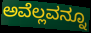
ಅವೆಲ್ಲವನ್ನೂ